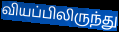
வியப்பிலிருந்து